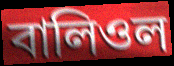
বালিওল